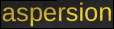
aspersion